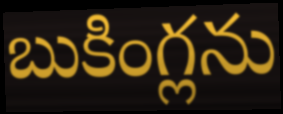
బుకింగ్లను